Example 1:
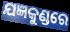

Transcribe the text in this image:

ଯଜ୍ଞକୁଣ୍ଡରେ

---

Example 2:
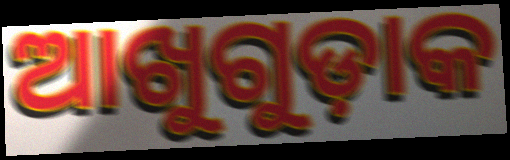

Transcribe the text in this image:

ଆଖୁଗୁଡ଼ାକ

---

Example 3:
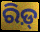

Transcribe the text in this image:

ରିଡ଼୍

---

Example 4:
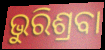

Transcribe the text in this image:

ଭୁରିଶ୍ରବା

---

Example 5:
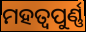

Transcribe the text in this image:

ମହତ୍ୱପୁର୍ଣ୍ଣ